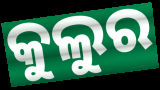
କୁଲୁର